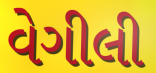
વેગીલી